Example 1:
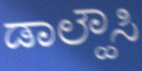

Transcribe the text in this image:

ಡಾಲ್ಹೌಸಿ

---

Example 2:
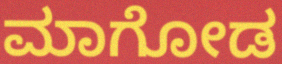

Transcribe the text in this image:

ಮಾಗೋಡ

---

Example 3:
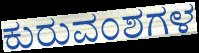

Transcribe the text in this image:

ಕುರುವಂಶಗಳ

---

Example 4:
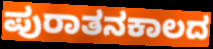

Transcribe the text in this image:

ಪುರಾತನಕಾಲದ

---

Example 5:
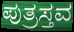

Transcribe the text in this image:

ಪುತ್ರಸ್ತವ